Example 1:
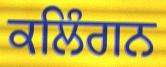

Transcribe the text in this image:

ਕਲਿੰਗਨ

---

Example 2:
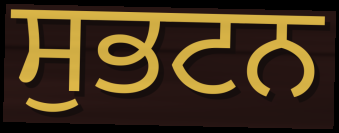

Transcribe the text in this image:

ਸੁਭਟਨ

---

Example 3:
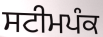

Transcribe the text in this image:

ਸਟੀਮਪੰਕ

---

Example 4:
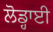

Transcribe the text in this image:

ਲੋਡ੍ਹਾਈ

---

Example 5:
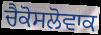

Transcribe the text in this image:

ਚੈਕੋਸਲੋਵਾਕ